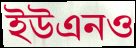
ইউএনও